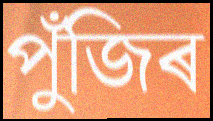
পুঁজিৰ